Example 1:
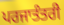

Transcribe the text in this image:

ਪਰਜਾਤੰਤਰੀ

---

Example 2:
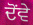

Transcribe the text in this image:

ਦੋਂਵੇ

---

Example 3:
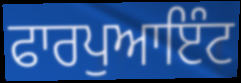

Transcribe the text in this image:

ਫਾਰਪੁਆਇੰਟ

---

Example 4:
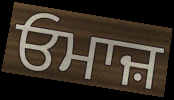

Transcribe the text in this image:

ਓਮਾਜ਼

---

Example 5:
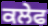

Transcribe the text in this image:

ਕਲੇਫ